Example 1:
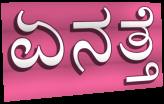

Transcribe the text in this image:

ಏನತ್ತೆ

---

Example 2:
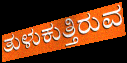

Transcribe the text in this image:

ತುಳುಕುತ್ತಿರುವ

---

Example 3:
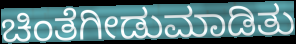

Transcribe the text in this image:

ಚಿಂತೆಗೀಡುಮಾಡಿತು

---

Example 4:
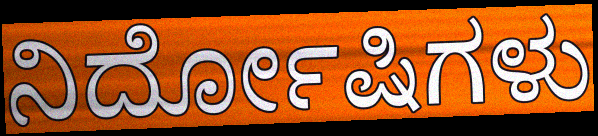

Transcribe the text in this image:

ನಿರ್ದೋಷಿಗಳು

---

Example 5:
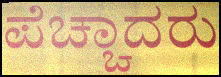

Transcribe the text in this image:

ಪೆಚ್ಚಾದರು